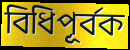
বিধিপূর্বক